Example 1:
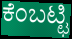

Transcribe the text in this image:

ಕೆಂಬಟ್ಟಿ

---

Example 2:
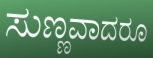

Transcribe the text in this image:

ಸುಣ್ಣವಾದರೂ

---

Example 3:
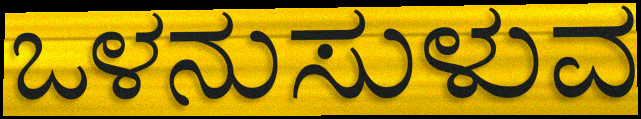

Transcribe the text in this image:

ಒಳನುಸುಳುವ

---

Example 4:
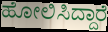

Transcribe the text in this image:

ಹೋಲಿಸಿದ್ದಾರೆ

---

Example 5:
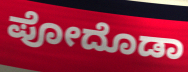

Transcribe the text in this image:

ಪೋದೊಡಾ